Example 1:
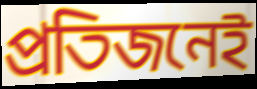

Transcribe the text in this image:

প্ৰতিজনেই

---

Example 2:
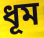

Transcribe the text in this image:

ধূম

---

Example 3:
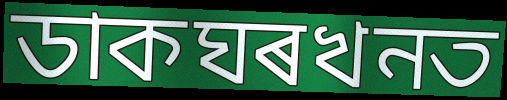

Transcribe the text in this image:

ডাকঘৰখনত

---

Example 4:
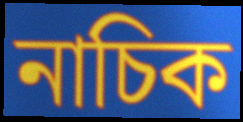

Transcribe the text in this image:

নাচিক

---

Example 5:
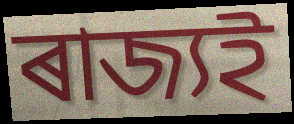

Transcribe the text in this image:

ৰাজ্যই